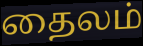
தைலம்